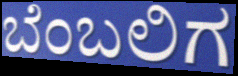
ಬೆಂಬಲಿಗ